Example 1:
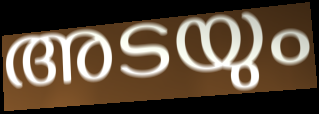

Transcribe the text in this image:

അടയും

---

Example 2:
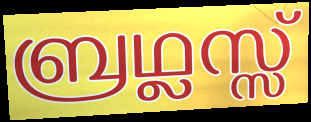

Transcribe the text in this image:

ബ്രഥ്ലസ്സ്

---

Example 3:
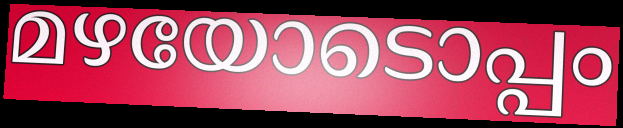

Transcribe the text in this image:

മഴയോടൊപ്പം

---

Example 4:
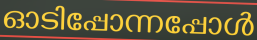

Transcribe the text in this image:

ഓടിപ്പോന്നപ്പോൾ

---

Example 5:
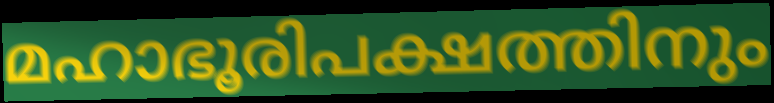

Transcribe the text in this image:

മഹാഭൂരിപക്ഷത്തിനും